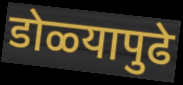
डोळ्यापुढे